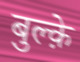
बुल्क़े